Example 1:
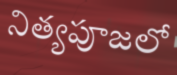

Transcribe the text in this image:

నిత్యపూజలో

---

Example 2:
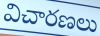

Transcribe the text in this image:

విచారణలు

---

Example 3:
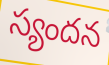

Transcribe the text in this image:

స్యందన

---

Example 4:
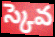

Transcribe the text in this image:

స్కెవ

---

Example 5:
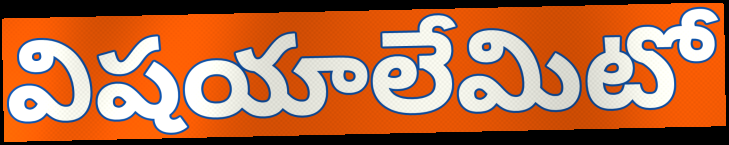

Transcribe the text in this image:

విషయాలేమిటో